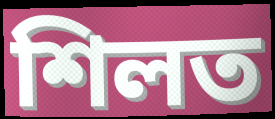
শিলত